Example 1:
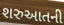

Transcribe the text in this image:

શરુઆતની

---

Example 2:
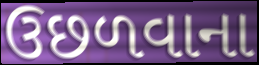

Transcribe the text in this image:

ઉછળવાના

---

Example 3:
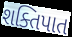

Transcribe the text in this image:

શક્તિપાત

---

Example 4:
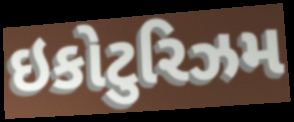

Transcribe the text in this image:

ઇકોટુરિઝમ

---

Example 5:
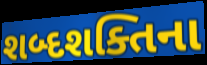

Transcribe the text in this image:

શબ્દશક્તિના